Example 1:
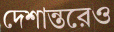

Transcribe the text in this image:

দেশান্তরেও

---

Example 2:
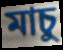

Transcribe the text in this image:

মাচু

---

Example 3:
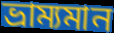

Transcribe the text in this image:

ভ্রাম্যমান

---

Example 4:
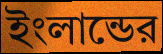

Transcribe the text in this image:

ইংলান্ডের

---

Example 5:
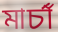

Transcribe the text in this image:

মার্চাঁ